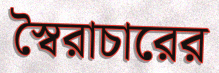
স্বৈরাচারের